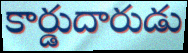
కార్డుదారుడు